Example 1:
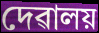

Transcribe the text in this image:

দেৱালয়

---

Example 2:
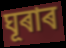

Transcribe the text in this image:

ঘূৰাৰ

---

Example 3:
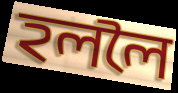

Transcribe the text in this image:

হললৈ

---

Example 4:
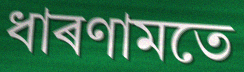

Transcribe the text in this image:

ধাৰণামতে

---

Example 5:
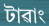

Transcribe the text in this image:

টাৱাং